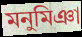
মনুমিঞা